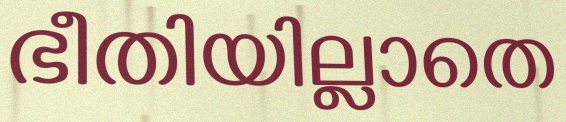
ഭീതിയില്ലാതെ